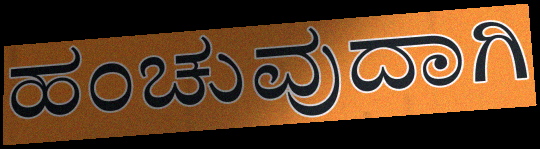
ಹಂಚುವುದಾಗಿ